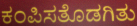
ಕಂಪಿಸತೊಡಗಿತು